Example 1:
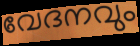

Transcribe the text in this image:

വേദനവും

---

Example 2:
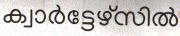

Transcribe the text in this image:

ക്വാർട്ടേഴ്സിൽ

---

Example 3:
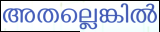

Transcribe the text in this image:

അതല്ലെങ്കിൽ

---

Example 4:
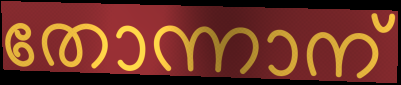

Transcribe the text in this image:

തോന്നാന്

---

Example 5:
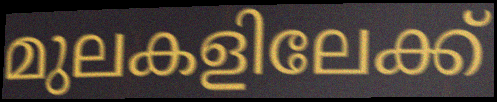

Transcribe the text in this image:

മുലകളിലേക്ക്